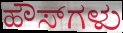
ಹೌಸ್‌ಗಳು